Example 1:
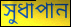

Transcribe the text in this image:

সুধাপান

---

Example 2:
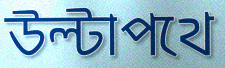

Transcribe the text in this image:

উল্টাপথে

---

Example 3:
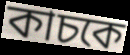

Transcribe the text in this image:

কাচকে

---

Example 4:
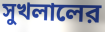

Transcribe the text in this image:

সুখলালের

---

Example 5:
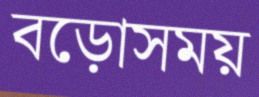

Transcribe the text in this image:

বড়োসময়